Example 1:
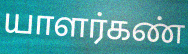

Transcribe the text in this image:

யாளர்கண்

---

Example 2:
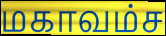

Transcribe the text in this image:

மகாவம்ச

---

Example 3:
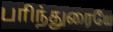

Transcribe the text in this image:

பரிந்துரையே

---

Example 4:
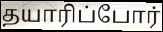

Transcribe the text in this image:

தயாரிப்போர்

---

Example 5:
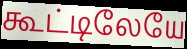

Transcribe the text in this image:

கூட்டிலேயே